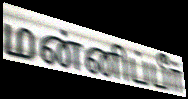
மன்னிப்பீர்